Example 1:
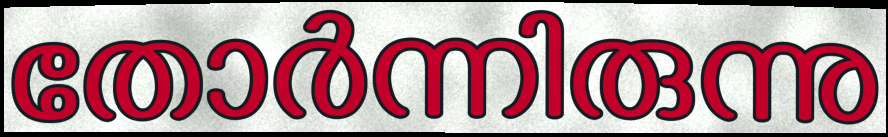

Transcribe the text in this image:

തോർന്നിരുന്നു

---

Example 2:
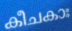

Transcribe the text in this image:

കീചകാഃ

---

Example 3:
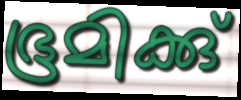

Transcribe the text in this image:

ഭൂമിക്കു്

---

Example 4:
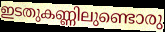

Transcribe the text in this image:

ഇടതുകണ്ണിലുണ്ടൊരു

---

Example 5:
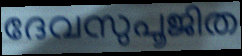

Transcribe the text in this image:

ദേവസുപൂജിത